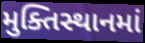
મુક્તિસ્થાનમાં